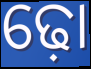
ଢ଼ୋ